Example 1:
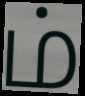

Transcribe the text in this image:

ம்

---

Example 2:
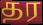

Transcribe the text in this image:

தர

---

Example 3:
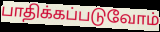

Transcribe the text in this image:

பாதிக்கப்படுவோம்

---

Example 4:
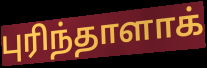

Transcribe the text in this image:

புரிந்தாளாக்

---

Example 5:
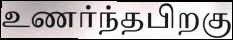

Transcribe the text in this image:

உணர்ந்தபிறகு